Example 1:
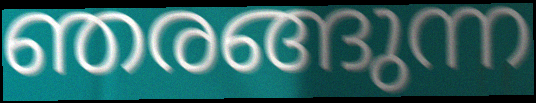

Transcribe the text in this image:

ഞരങ്ങുന്ന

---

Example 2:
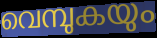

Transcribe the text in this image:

വെമ്പുകയും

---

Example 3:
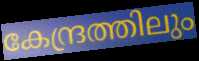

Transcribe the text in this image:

കേന്ദ്രത്തിലും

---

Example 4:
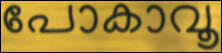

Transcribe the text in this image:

പോകാവൂ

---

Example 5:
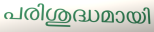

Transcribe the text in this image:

പരിശുദ്ധമായി